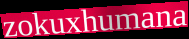
zokuxhumana